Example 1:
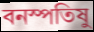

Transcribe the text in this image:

বনস্পতিষু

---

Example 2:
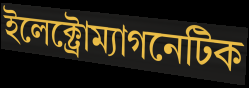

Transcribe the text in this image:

ইলেক্ট্রোম্যাগনেটিক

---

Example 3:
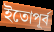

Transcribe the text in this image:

ইতোপূর্ব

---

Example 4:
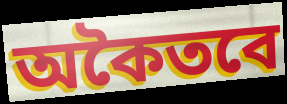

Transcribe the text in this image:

অকৈতবে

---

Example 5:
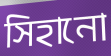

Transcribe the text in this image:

সিহানো